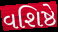
વશિષ્ઠે